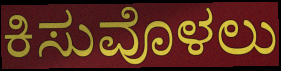
ಕಿಸುವೊಳಲು